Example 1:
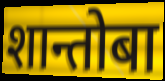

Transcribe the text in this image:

शान्तोबा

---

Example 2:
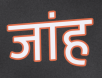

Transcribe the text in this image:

जांह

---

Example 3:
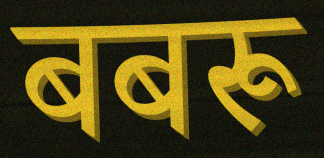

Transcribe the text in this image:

बबरू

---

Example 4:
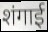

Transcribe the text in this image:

शंगाई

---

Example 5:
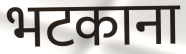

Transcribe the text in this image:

भटकाना